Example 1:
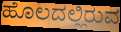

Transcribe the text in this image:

ಹೊಲದಲ್ಲಿರುವ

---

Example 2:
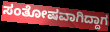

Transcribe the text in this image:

ಸಂತೋಷವಾಗಿದ್ದಾಗ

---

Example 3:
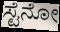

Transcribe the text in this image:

ಸ್ಟೆನೋ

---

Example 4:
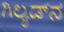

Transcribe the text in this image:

ಗಿಲ್ಯಡ್‌ನ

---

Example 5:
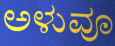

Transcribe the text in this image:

ಅಳುವೂ